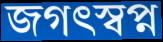
জগৎস্বপ্ন